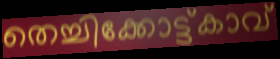
തെച്ചിക്കോട്ട്കാവ്